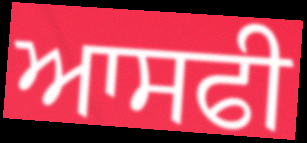
ਆਸਫੀ